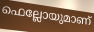
ഫെല്ലോയുമാണ്